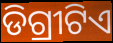
ଡିଗ୍ରୀଟିଏ